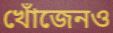
খোঁজেনও